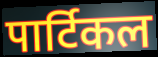
पार्टिकल